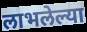
लाभलेल्या